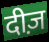
दीज़